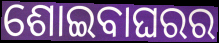
ଶୋଇବାଘରର